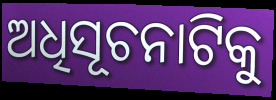
ଅଧିସୂଚନାଟିକୁ